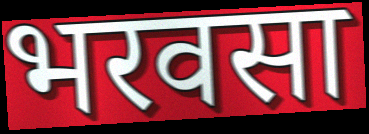
भरवसा